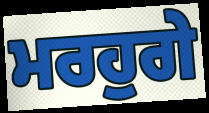
ਮਰਹੁਗੇ